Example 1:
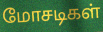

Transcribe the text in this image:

மோசடிகள்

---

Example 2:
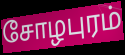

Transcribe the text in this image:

சோழபுரம்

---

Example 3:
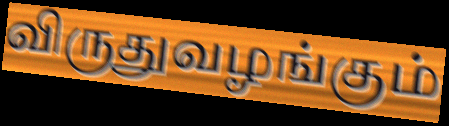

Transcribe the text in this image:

விருதுவழங்கும்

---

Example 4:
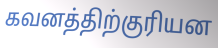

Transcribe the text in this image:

கவனத்திற்குரியன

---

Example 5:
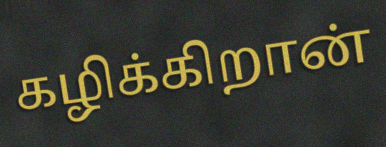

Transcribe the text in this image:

கழிக்கிறான்